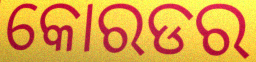
କୋରଡର